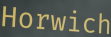
Horwich